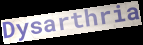
Dysarthria